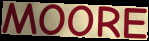
MOORE